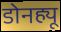
डोनह्यू